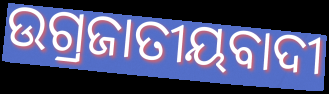
ଉଗ୍ରଜାତୀୟବାଦୀ